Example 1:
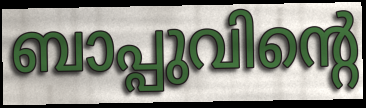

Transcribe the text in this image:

ബാപ്പുവിന്റെ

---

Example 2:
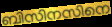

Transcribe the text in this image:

ബിസിനസിനെ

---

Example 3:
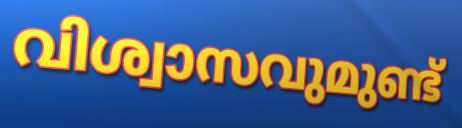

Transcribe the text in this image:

വിശ്വാസവുമുണ്ട്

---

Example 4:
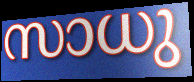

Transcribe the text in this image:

സാധു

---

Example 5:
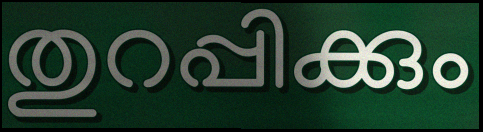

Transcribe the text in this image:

തുറപ്പിക്കും